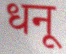
धनू